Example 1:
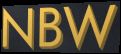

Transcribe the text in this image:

NBW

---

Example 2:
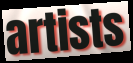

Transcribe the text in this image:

artists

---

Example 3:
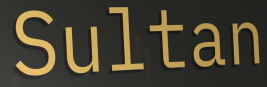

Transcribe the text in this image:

Sultan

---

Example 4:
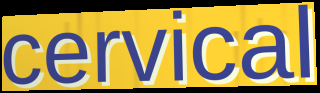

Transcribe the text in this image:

cervical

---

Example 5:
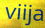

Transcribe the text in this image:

viija